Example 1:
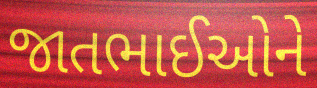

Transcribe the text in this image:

જાતભાઈઓને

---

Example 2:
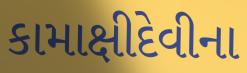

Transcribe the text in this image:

કામાક્ષીદેવીના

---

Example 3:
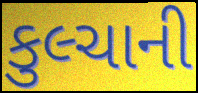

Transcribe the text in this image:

કુલ્ચાની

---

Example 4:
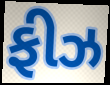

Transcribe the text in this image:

ફીઝ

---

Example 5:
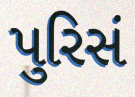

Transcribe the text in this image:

પુરિસં